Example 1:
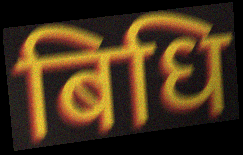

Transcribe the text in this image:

बिधि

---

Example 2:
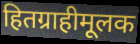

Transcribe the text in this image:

हितग्राहीमूलक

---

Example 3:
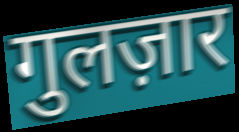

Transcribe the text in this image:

गुलज़ार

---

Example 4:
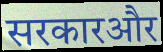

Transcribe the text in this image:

सरकारऔर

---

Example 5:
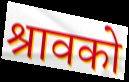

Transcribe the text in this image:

श्रावको